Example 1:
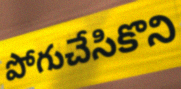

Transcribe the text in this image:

పోగుచేసికొని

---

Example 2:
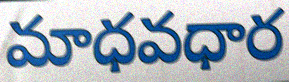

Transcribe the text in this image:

మాధవధార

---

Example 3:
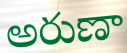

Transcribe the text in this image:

అరుణా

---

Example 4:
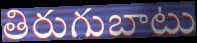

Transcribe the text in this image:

తిరుగుబాటు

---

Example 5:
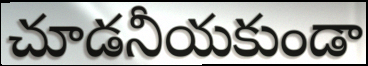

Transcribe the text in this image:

చూడనీయకుండా